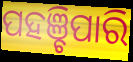
ପହଞ୍ଚିପାରି